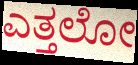
ಎತ್ತಲೋ